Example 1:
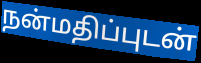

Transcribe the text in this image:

நன்மதிப்புடன்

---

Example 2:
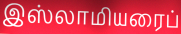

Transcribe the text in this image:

இஸ்லாமியரைப்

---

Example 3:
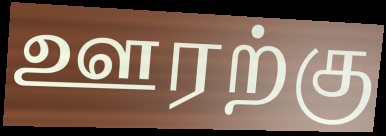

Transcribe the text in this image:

ஊரற்கு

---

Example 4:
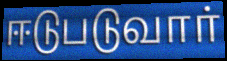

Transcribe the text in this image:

ஈடுபடுவார்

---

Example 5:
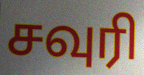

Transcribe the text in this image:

சவுரி